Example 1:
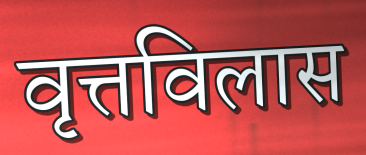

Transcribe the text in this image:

वृत्तविलास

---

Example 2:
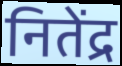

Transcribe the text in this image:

नितेंद्र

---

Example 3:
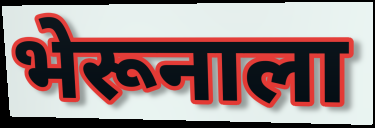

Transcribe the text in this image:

भेरूनाला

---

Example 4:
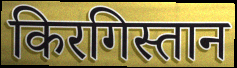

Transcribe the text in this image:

किरगिस्तान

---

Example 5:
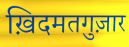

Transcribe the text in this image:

ख़िदमतगुज़ार